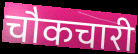
चौकचारी